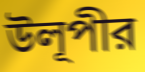
উলূপীর